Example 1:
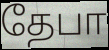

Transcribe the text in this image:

தேபா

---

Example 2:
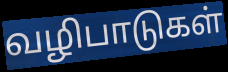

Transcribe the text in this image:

வழிபாடுகள்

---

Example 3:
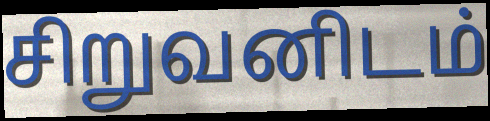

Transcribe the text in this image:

சிறுவனிடம்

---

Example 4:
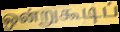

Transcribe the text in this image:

ஒன்றுகூடிப்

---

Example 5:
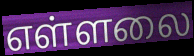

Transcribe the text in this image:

எள்ளலை